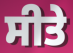
ਸੀਤੇ